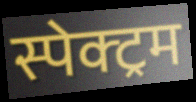
स्पेक्ट्रम